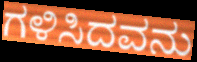
ಗಳಿಸಿದವನು